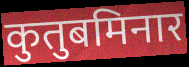
कुतुबमिनार